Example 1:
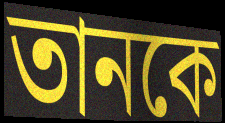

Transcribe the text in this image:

তানকে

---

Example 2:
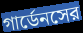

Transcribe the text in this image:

গার্ডেনসের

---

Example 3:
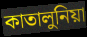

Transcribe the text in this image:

কাতালুনিয়া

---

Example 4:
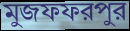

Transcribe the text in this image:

মুজফফরপুর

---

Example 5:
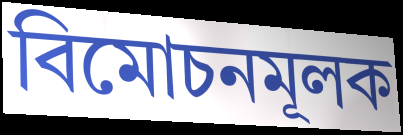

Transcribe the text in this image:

বিমোচনমূলক